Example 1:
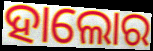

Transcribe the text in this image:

ହାଲୋର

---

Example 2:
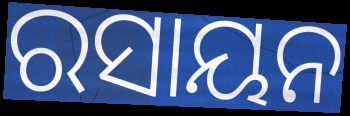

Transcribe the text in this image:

ରସାୟନ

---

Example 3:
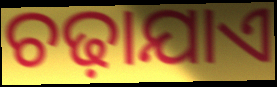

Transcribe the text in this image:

ଚଢ଼ାଯାଏ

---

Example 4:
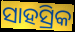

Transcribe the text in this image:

ସାହସ୍ରିକ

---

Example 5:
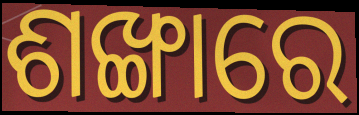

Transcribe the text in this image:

ଶଙ୍ଖାରେ